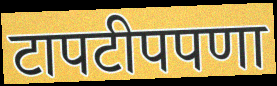
टापटीपपणा